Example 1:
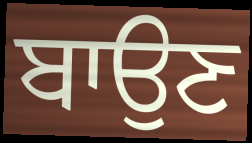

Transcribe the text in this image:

ਬਾਉਣ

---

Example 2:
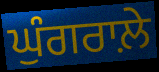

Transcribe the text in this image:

ਘੁੰਗਰਾਲ਼ੇ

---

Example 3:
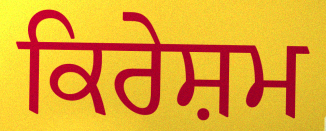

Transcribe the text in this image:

ਕਿਰੇਸ਼ਮ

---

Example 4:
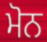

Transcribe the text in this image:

ਮੋਨ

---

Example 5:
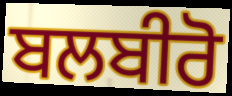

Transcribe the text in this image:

ਬਲਬੀਰੋ